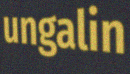
ungalin